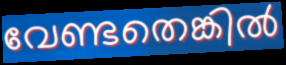
വേണ്ടതെങ്കിൽ